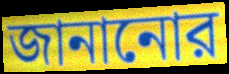
জানানোর